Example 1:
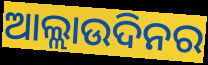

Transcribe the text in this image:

ଆଲ୍ଲାଉଦିନର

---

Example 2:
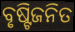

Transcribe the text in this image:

ବୃଷ୍ଟିଜନିତ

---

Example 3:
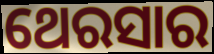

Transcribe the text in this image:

ଥେରସାର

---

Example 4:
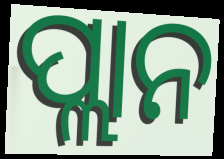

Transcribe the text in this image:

ପ୍ଲାନ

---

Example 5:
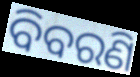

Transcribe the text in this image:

ବିବରଣି